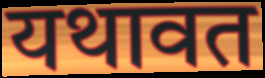
यथावत